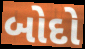
બોદો